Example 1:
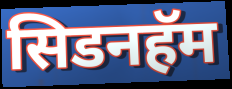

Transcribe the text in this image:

सिडनहॅम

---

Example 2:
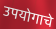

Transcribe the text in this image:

उपयोगाचे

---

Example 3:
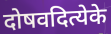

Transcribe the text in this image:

दोषवदित्येके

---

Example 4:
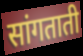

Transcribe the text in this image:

सांगताती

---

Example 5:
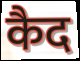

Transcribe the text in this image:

कैद